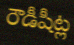
రౌడీషీట్ల